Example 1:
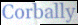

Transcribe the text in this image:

Corbally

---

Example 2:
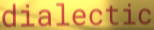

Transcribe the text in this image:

dialectic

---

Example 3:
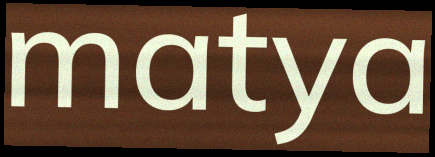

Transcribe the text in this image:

matya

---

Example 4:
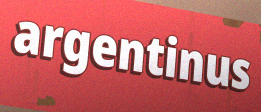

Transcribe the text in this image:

argentinus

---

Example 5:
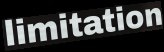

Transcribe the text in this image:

limitation